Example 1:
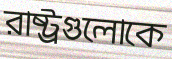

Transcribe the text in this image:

রাষ্ট্রগুলোকে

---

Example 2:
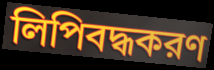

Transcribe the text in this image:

লিপিবদ্ধকরণ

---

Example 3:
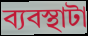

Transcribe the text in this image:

ব্যবস্থাটা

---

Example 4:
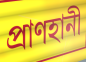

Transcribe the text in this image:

প্রাণহানী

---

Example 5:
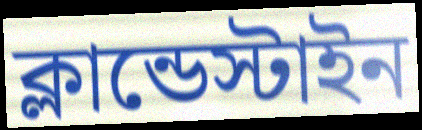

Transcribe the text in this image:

ক্লান্ডেস্টাইন